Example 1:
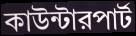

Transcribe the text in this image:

কাউন্টারপার্ট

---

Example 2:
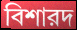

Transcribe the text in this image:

বিশারদ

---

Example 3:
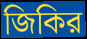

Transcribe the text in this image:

জিকির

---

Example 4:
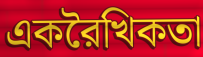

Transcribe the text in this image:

একরৈখিকতা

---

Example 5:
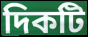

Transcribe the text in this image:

দিকটি